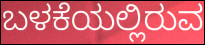
ಬಳಕೆಯಲ್ಲಿರುವ